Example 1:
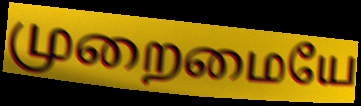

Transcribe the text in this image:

முறைமையே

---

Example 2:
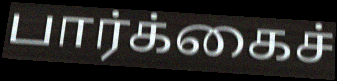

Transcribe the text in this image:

பார்க்கைச்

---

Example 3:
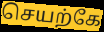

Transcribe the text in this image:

செயற்கே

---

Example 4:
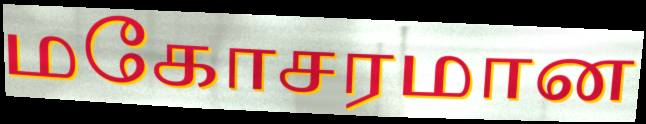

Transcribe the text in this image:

மகோசரமான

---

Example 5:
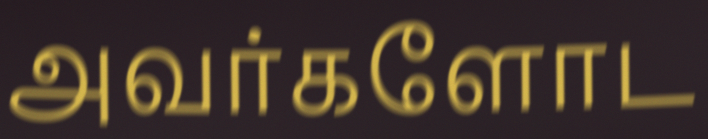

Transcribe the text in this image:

அவர்களோட